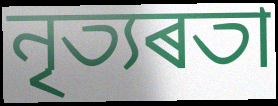
নৃত্যৰতা